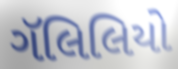
ગૅલિલિયો